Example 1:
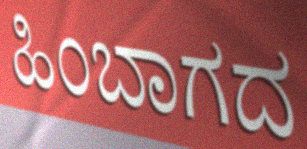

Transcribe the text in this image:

ಹಿಂಬಾಗದ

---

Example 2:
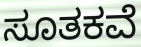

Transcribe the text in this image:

ಸೂತಕವೆ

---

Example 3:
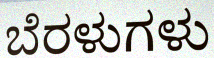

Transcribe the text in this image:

ಬೆರಳುಗಳು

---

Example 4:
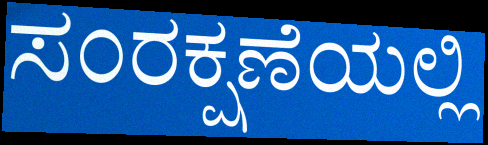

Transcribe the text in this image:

ಸಂರಕ್ಷಣೆಯಲ್ಲಿ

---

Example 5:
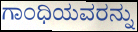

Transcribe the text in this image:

ಗಾಂಧಿಯವರನ್ನು